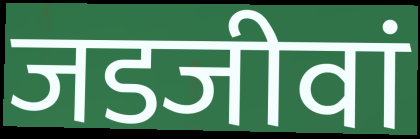
जडजीवां